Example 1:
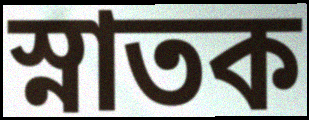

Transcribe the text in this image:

স্নাতক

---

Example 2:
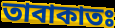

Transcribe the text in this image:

তাবাকাতঃ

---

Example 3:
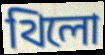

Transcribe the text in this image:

থিলো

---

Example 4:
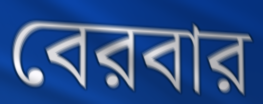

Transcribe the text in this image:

বেরবার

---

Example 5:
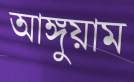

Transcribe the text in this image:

আঙ্গুয়াম